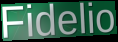
Fidelio